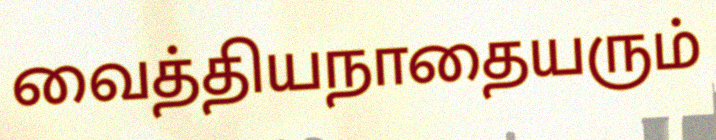
வைத்தியநாதையரும்